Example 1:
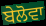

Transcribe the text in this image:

ਬੇਲੋਵਾ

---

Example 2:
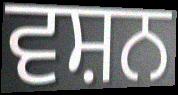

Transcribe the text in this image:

ਵਸ਼ਨ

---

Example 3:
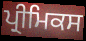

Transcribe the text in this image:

ਪ੍ਰੀਮਿਕਸ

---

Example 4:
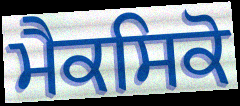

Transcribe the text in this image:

ਮੈਕਸਿਕੋ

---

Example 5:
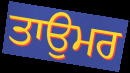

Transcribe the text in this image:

ਤਾਉਮਰ